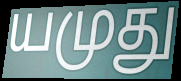
யமுது